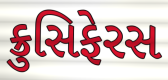
ક્રુસિફેરસ